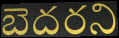
బెదరని